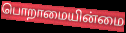
பொறாமையின்மை